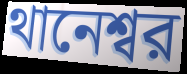
থানেশ্বর